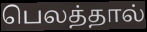
பெலத்தால்